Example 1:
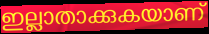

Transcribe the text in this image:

ഇല്ലാതാക്കുകയാണ്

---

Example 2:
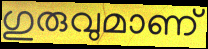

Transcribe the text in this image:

ഗുരുവുമാണ്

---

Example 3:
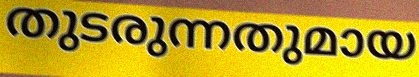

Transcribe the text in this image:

തുടരുന്നതുമായ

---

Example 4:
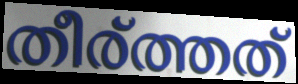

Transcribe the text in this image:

തീര്ത്തത്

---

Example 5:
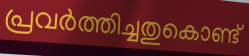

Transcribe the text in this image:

പ്രവർത്തിച്ചതുകൊണ്ട്